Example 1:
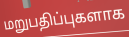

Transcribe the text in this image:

மறுபதிப்புகளாக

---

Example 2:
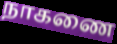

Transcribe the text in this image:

நாகணை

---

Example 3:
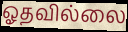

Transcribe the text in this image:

ஓதவில்லை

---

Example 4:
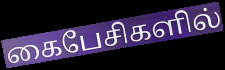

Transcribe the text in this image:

கைபேசிகளில்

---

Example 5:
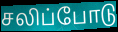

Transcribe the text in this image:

சலிப்போடு